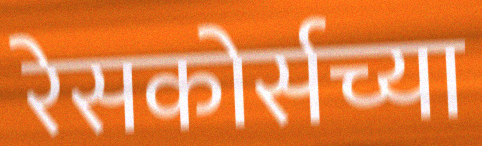
रेसकोर्सच्या